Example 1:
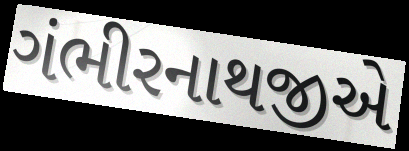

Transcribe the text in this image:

ગંભીરનાથજીએ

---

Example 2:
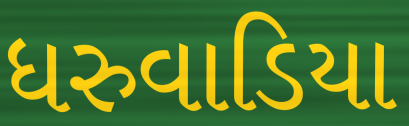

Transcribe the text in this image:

ધરુવાડિયા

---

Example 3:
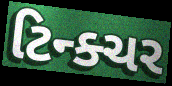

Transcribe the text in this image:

ટિન્ક્ચર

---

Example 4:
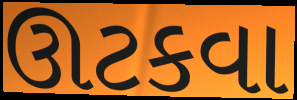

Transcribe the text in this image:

ઊટકવા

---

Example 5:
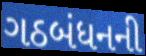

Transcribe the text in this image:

ગઠબંધનની